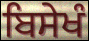
ਬਿਸੇਖੰ